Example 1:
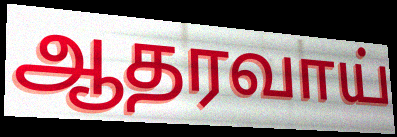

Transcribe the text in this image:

ஆதரவாய்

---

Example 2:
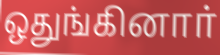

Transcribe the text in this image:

ஒதுங்கினார்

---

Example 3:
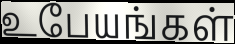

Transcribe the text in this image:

உபேயங்கள்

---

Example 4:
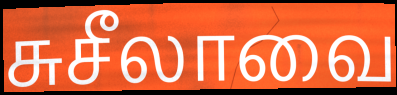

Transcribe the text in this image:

சுசீலாவை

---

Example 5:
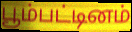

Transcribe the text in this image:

பூம்பட்டினம்